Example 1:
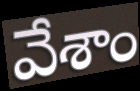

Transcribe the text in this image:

వేశాం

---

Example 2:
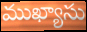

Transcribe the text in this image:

ముఖ్యాసు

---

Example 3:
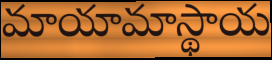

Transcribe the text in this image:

మాయామాస్థాయ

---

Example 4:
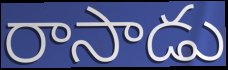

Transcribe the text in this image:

రాసాడు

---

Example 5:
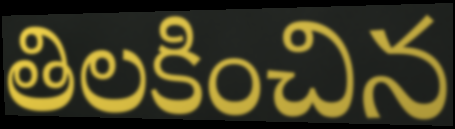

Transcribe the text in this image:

తిలకించిన